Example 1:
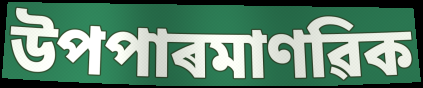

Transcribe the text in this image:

উপপাৰমাণৱিক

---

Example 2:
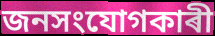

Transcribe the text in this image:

জনসংযোগকাৰী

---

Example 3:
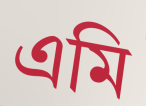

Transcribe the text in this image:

এমি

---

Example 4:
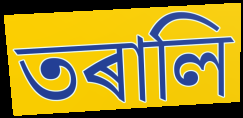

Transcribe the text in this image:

তৰালি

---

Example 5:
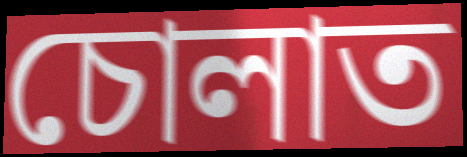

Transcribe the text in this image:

চোলাত